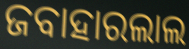
ଜବାହାରଲାଲ